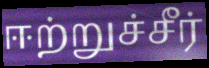
ஈற்றுச்சீர்